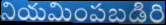
నియమింపబడిరి